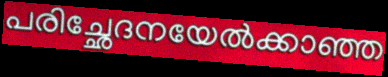
പരിച്ഛേദനയേൽക്കാഞ്ഞ